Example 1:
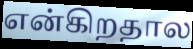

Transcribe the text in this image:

என்கிறதால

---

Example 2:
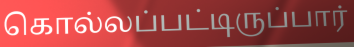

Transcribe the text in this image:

கொல்லப்பட்டிருப்பார்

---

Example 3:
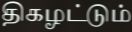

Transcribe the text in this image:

திகழட்டும்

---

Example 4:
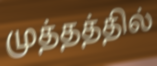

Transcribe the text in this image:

முத்தத்தில்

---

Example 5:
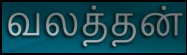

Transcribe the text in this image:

வலத்தன்